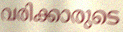
വരിക്കാരുടെ